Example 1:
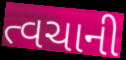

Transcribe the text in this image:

ત્વચાની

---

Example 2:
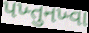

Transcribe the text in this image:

પખ્તુનખ્વા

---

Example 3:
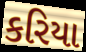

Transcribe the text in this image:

કરિયા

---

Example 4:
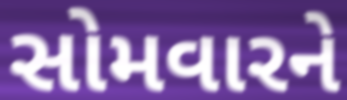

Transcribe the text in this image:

સોમવારને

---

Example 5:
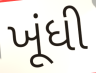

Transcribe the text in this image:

ખૂંધી